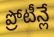
ప్రోటీన్లే